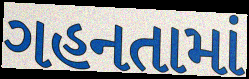
ગહનતામાં